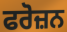
ਫਰੋਜ਼ਨ